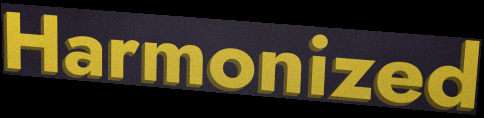
Harmonized